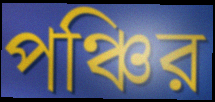
পঞ্চির